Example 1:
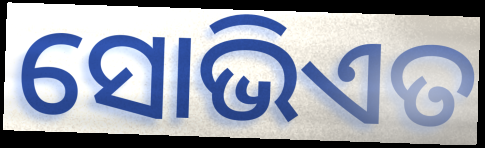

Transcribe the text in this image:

ସୋଭିଏତ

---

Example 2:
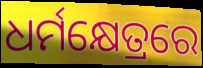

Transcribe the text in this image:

ଧର୍ମକ୍ଷେତ୍ରରେ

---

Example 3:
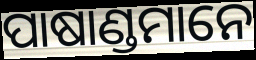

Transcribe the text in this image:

ପାଷାଣ୍ଡମାନେ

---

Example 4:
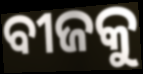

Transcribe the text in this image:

ବୀଜକୁ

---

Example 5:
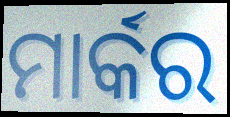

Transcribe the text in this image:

ମାର୍କର